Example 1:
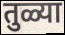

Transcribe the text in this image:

तुळ्या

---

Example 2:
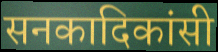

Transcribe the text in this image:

सनकादिकांसी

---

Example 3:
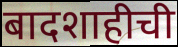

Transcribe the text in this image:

बादशाहीची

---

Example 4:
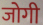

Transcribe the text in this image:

जोगी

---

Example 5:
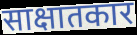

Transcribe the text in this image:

साक्षातकार